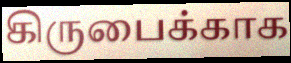
கிருபைக்காக